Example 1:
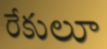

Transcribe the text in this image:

రేకులూ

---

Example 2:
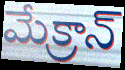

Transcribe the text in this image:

మేక్రాన్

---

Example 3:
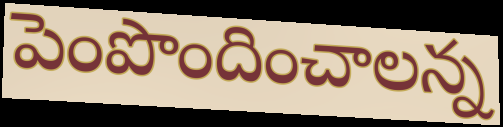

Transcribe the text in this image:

పెంపొందించాలన్న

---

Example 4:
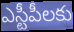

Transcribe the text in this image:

ఎస్టీపీలకు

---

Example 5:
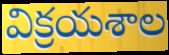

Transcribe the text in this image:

విక్రయశాల